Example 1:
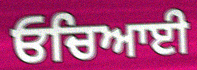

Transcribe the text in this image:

ਓਚਿਆਈ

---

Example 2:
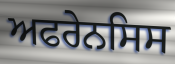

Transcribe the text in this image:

ਅਫਰੇਨਸਿਸ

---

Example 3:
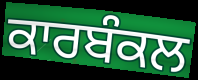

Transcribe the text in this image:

ਕਾਰਬੰਕਲ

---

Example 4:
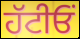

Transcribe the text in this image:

ਹੱਟੀਓਂ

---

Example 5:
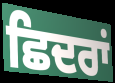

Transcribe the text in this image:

ਛਿਦਰਾਂ